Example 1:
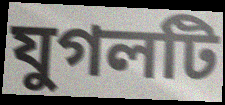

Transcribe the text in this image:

যুগলটি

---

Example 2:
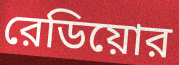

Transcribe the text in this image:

রেডিয়োর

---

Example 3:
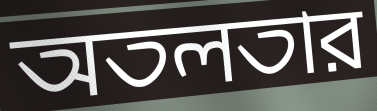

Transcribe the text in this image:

অতলতার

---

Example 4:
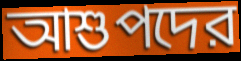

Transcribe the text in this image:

আশুপদের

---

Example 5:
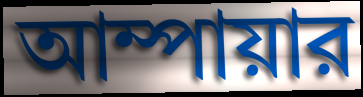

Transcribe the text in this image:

আম্পায়ার